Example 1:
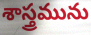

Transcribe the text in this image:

శాస్త్రమును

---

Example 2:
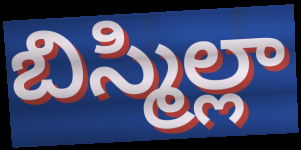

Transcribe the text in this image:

బిస్మిల్లా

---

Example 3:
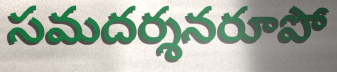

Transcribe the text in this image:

సమదర్శనరూపో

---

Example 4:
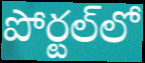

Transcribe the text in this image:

పోర్టల్‌లో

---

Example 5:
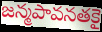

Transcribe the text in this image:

జన్మపావనతకై